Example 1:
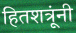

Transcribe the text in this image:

हितशत्रूंनी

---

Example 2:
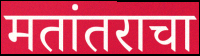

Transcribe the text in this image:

मतांतराचा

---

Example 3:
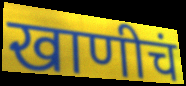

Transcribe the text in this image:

खाणीचं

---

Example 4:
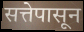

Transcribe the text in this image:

सत्तेपासून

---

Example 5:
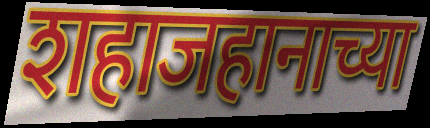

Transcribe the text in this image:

शहाजहानाच्या